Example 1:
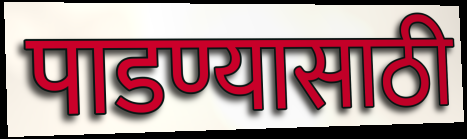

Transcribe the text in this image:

पाडण्यासाठी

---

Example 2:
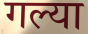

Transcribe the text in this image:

गल्या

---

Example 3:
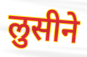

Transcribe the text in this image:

लुसीने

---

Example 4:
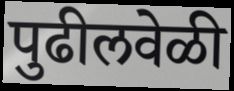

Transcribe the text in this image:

पुढीलवेळी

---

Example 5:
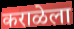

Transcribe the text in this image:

कराळेला